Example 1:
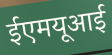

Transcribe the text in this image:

ईएमयूआई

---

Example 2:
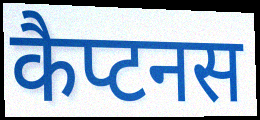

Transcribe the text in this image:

कैप्टनस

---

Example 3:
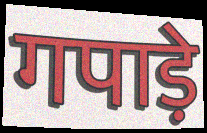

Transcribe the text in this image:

गपाड़े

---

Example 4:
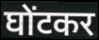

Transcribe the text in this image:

घोंटकर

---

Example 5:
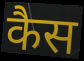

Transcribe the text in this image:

कैस